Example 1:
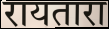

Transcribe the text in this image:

रायतारा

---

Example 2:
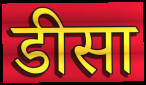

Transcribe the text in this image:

डीसा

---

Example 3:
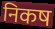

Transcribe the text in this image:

निकष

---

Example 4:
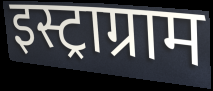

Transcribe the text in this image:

इस्ट्राग्राम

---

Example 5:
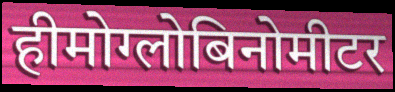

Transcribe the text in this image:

हीमोग्लोबिनोमीटर